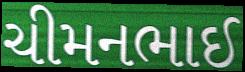
ચીમનભાઈ